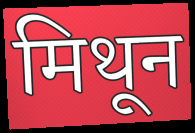
मिथून